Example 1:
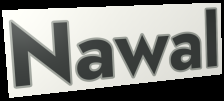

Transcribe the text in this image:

Nawal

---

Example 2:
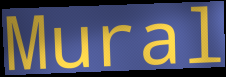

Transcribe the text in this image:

Mural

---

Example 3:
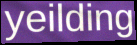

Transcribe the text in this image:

yeilding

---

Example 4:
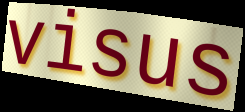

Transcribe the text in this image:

visus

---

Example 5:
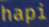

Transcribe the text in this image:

hapi